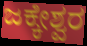
ಜಕ್ಕೇಶ್ವರ